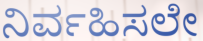
ನಿರ್ವಹಿಸಲೇ